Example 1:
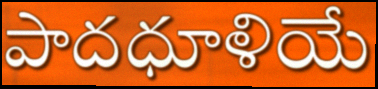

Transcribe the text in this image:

పాదధూళియే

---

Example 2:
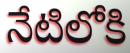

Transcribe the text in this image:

నేటిలోకి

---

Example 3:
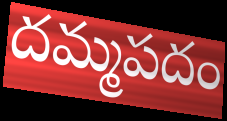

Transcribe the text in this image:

దమ్మపదం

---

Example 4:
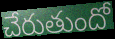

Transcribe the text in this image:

చేరుతుందో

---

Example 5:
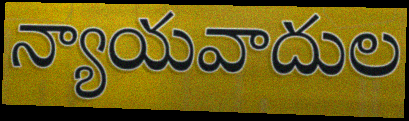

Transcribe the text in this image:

న్యాయవాదుల